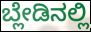
ಬ್ಲೇಡಿನಲ್ಲಿ